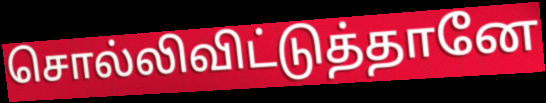
சொல்லிவிட்டுத்தானே